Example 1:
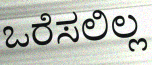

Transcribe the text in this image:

ಒರೆಸಲಿಲ್ಲ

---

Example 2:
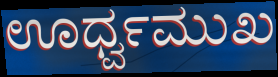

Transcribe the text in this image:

ಊರ್ಧ್ವಮುಖ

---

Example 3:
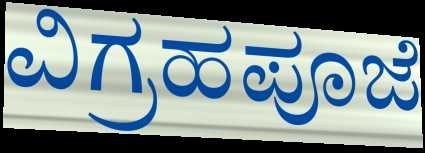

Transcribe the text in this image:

ವಿಗ್ರಹಪೂಜೆ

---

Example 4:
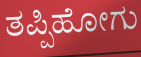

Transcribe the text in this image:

ತಪ್ಪಿಹೋಗು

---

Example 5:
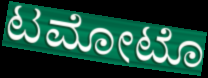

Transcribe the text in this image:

ಟಮೋಟೊ